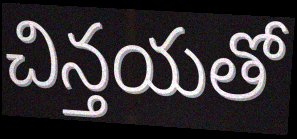
చిన్తయతో